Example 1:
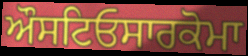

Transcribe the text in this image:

ਔਸਟਿਓਸਾਰਕੋਮਾ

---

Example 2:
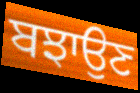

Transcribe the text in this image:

ਬਝਾਉਣ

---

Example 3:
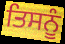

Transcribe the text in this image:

ਤਿਸਨੂੰ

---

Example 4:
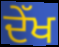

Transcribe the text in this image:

ਦੇੱਖ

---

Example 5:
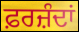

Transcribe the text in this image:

ਫ਼ਰਜ਼ੰਦਾਂ